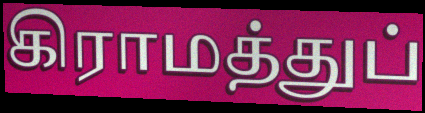
கிராமத்துப்